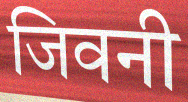
जिवनी